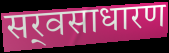
सर्वसाधारण